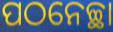
ପଠନେଚ୍ଛା